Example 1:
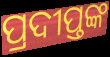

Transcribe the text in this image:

ପ୍ରଦୀପ୍ତଙ୍କ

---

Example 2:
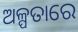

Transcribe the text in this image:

ଅଳ୍ପତାରେ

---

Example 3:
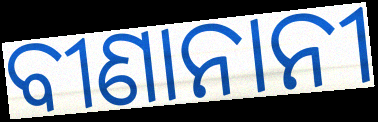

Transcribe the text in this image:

ବୀଣାନାନୀ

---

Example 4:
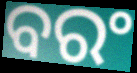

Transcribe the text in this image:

ବରଂ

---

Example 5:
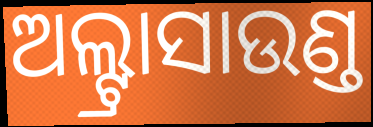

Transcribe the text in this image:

ଅଲ୍ଟ୍ରାସାଉଣ୍ଡ